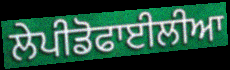
ਲੇਪੀਡੋਫਾਈਲੀਆ